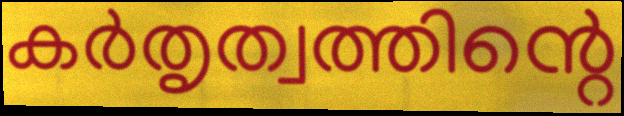
കർതൃത്വത്തിന്റെ